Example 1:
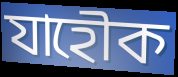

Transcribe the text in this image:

যাহৌক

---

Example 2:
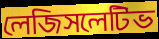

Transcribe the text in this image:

লেজিসলেটিভ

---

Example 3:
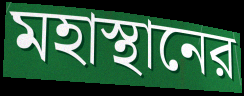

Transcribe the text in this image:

মহাস্থানের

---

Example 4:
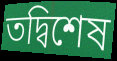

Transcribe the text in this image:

তদ্বিশেষ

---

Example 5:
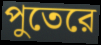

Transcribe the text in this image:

পুতেরে